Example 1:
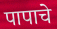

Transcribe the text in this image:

पापाचे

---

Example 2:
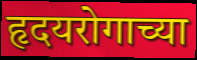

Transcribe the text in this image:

हृदयरोगाच्या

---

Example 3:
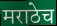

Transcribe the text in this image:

मराठेच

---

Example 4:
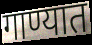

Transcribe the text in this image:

गाण्यात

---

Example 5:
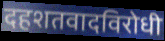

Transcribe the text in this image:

दहशतवादविरोधी